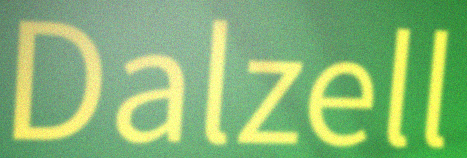
Dalzell